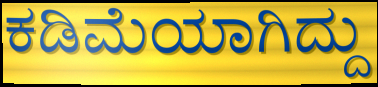
ಕಡಿಮೆಯಾಗಿದ್ದು